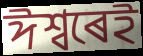
ঈশ্বৰেই